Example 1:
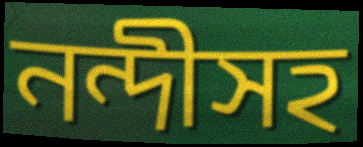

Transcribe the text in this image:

নন্দীসহ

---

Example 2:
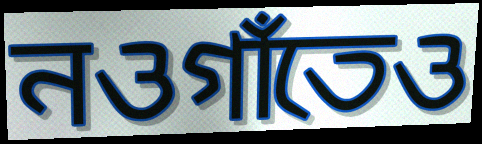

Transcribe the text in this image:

নওগাঁতেও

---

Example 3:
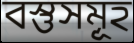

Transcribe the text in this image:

বস্তুসমূহ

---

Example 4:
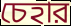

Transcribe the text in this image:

চেহার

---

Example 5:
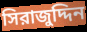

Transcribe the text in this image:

সিরাজুদ্দিন